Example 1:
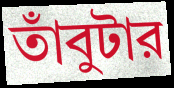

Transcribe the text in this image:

তাঁবুটার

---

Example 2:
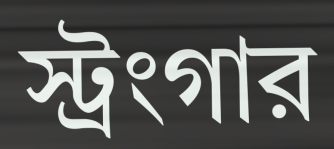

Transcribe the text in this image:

স্ট্রংগার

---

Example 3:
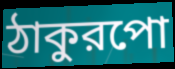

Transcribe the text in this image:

ঠাকুরপো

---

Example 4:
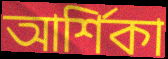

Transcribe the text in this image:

আর্শিকা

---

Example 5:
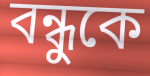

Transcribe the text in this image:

বন্ধুকে